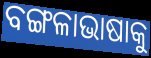
ବଙ୍ଗଳାଭାଷାକୁ